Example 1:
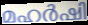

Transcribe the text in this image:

മഹർഷി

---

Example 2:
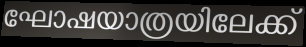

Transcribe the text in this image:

ഘോഷയാത്രയിലേക്ക്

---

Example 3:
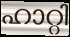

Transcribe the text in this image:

ഹാറ്റി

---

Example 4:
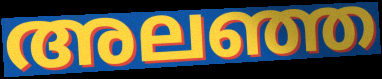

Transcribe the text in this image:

അലഞ്ഞ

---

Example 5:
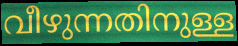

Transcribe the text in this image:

വീഴുന്നതിനുള്ള